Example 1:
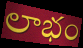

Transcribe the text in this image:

లాభం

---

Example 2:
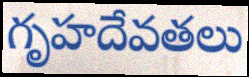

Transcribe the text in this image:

గృహదేవతలు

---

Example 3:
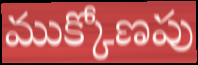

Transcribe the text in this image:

ముక్కోణపు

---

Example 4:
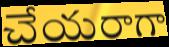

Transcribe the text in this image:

చేయరాగా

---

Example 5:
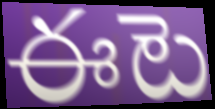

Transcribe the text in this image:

ఈటె